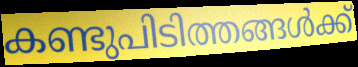
കണ്ടുപിടിത്തങ്ങൾക്ക്